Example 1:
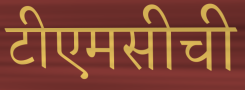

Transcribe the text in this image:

टीएमसीची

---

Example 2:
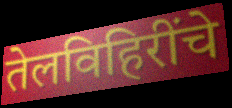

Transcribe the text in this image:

तेलविहिरींचे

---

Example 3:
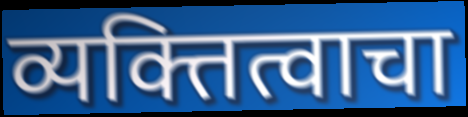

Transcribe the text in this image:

व्यक्तित्वाचा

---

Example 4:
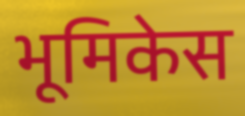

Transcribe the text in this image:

भूमिकेस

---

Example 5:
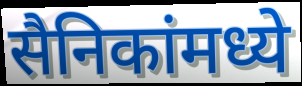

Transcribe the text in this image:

सैनिकांमध्ये